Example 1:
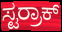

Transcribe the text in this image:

ಸ್ಟರ್ರಾಕ್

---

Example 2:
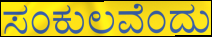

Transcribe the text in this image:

ಸಂಕುಲವೆಂದು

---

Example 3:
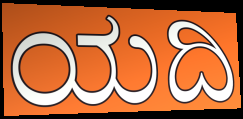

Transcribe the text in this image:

ಯದಿ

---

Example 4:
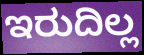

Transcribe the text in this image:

ಇರುದಿಲ್ಲ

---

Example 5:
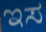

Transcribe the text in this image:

ಇಸ